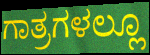
ಗಾತ್ರಗಳಲ್ಲೂ